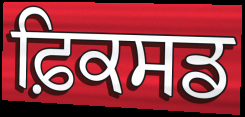
ਫ਼ਿਕਸਡ